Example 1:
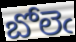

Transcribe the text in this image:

బోలెఁ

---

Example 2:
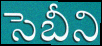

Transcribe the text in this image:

సెబీని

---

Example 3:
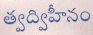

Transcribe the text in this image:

త్వద్విహీనం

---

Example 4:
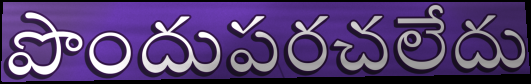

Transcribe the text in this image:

పొందుపరచలేదు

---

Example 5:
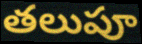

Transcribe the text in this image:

తలుపూ